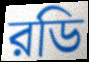
রডি